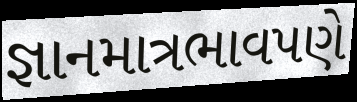
જ્ઞાનમાત્રભાવપણે